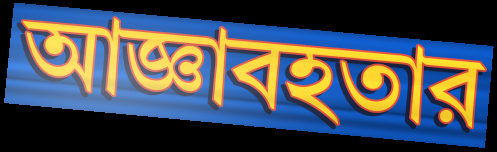
আজ্ঞাবহতার